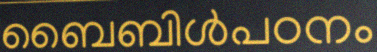
ബൈബിൾപഠനം